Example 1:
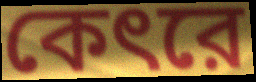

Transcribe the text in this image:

কেৎরে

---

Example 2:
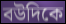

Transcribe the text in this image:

বউদিকে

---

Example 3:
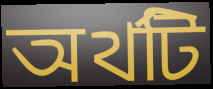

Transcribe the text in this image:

অর্থটি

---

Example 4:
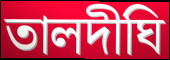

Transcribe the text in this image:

তালদীঘি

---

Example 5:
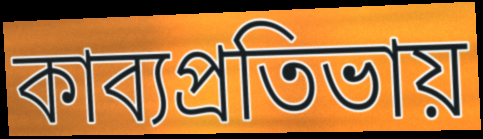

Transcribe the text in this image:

কাব্যপ্রতিভায়